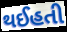
થઈહતી